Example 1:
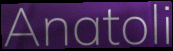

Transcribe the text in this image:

Anatoli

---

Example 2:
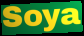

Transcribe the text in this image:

Soya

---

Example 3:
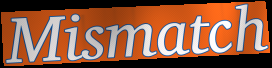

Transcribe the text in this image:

Mismatch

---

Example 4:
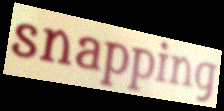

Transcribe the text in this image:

snapping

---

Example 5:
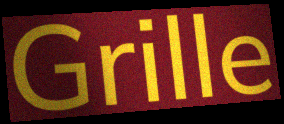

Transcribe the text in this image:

Grille